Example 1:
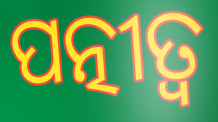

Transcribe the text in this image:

ପତ୍ନୀତ୍ୱ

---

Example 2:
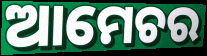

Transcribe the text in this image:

ଆମେଚର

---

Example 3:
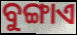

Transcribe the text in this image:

ବୁଙ୍ଗାଏ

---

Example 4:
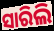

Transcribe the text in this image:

ସାରିଲି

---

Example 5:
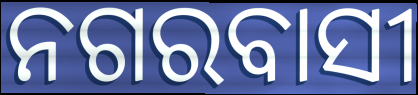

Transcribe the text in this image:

ନଗରବାସୀ